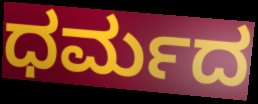
ಧರ್ಮದ